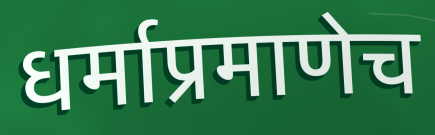
धर्माप्रमाणेच